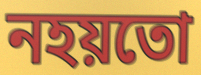
নহয়তো